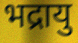
भद्रायु